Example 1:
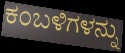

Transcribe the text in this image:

ಕಂಬಳಿಗಳನ್ನು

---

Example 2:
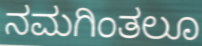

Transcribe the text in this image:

ನಮಗಿಂತಲೂ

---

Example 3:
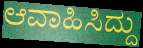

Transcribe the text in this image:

ಆವಾಹಿಸಿದ್ದು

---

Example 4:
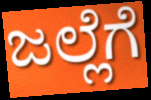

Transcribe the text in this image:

ಜಲ್ಲೆಗೆ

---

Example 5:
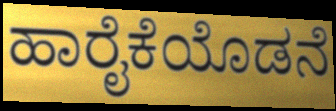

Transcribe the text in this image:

ಹಾರೈಕೆಯೊಡನೆ